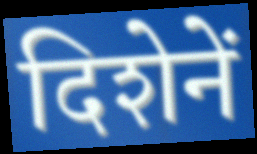
दिशेनें